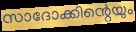
സാദോക്കിന്റെയും